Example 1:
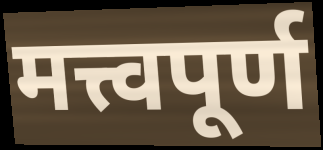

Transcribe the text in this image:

मत्त्वपूर्ण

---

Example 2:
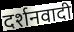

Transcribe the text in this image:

दर्शनवादी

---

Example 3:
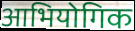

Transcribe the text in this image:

आभियोगिक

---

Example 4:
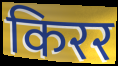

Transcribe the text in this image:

किरर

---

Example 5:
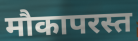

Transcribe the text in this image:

मौकापरस्त